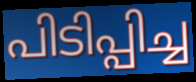
പിടിപ്പിച്ച